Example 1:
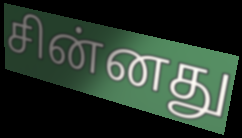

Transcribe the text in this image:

சின்னது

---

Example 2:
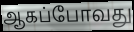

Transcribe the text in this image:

ஆகப்போவது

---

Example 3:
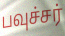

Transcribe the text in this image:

பவுச்சர்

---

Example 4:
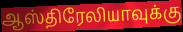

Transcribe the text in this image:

ஆஸ்திரேலியாவுக்கு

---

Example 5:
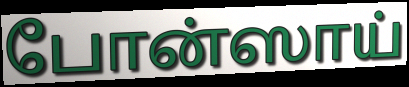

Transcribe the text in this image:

போன்ஸாய்